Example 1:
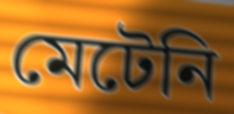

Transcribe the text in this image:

মেটেনি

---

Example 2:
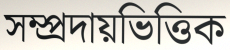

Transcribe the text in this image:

সম্প্রদায়ভিত্তিক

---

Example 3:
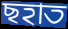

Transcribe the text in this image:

ছহাত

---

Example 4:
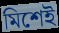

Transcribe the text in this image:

মিশেই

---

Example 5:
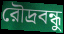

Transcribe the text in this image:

রৌদ্রবন্ধু